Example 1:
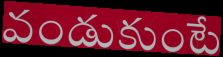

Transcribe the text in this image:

వండుకుంటే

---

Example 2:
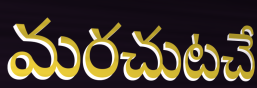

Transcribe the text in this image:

మరచుటచే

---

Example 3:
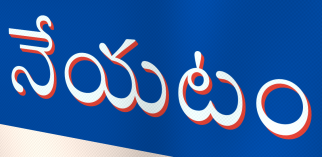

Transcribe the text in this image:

నేయటం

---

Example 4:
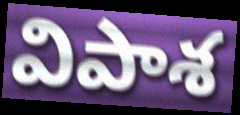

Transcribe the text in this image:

విపాశ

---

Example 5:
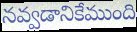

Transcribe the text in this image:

నవ్వడానికేముంది